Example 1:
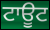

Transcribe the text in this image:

ਟਾਊਟ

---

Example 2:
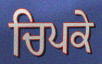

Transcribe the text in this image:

ਚਿਪਕੇ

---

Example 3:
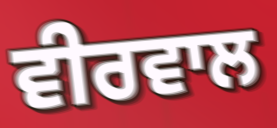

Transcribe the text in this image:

ਵੀਰਵਾਲ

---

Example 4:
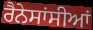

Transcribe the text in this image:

ਰੈਨੇਸਾਂਸੀਆਂ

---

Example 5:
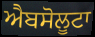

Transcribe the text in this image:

ਐਬਸੋਲੂਟਾ